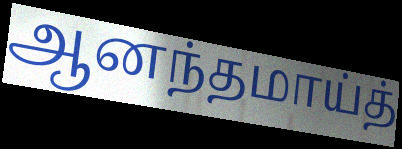
ஆனந்தமாய்த்